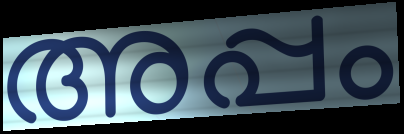
അപ്പം